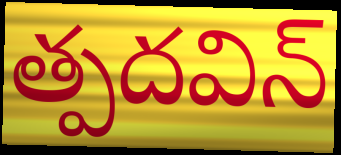
త్పదవిన్